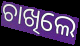
ଚାଖିଲେ